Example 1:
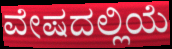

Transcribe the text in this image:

ವೇಷದಲ್ಲಿಯೆ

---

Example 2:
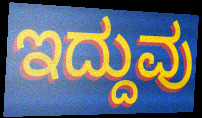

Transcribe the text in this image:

ಇದ್ದುವು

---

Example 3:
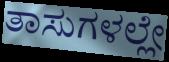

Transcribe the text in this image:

ತಾಸುಗಳಲ್ಲೇ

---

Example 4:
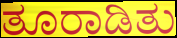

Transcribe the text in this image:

ತೂರಾಡಿತು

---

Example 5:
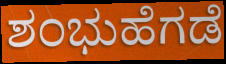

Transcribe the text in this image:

ಶಂಭುಹೆಗಡೆ